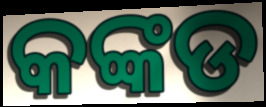
କଙ୍କଡ